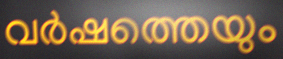
വർഷത്തെയും